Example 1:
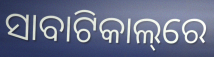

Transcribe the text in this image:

ସାବାଟିକାଲ୍‌ରେ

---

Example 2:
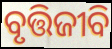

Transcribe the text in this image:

ବୃତ୍ତିଜୀବି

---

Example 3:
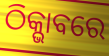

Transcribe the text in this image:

ଠିକ୍ଭାବରେ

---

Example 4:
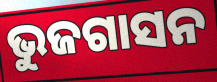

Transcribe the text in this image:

ଭୁଜଗାସନ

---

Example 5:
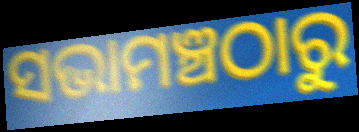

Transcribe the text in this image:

ସଭାମଞ୍ଚଠାରୁ